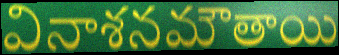
వినాశనమౌతాయి